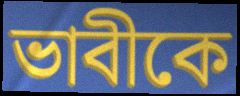
ভাবীকে